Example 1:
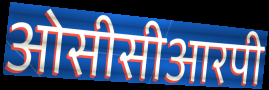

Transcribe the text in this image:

ओसीसीआरपी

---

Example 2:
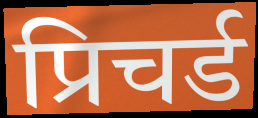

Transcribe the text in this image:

प्रिचर्ड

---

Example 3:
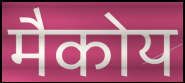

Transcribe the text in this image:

मैकोय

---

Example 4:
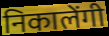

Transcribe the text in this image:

निकालेंगी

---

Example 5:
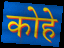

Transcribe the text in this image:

कोहे